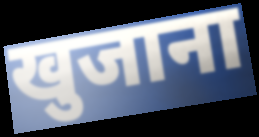
खुजाना